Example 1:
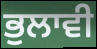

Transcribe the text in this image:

ਭੁਲਾਵੀ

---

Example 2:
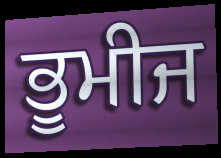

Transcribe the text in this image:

ਭੂਮੀਜ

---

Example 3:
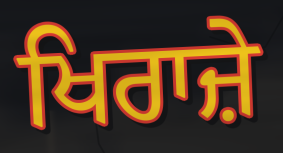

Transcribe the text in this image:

ਖਿਰਾਜ਼ੇ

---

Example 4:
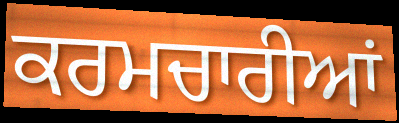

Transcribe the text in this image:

ਕਰਮਚਾਰੀਆਂ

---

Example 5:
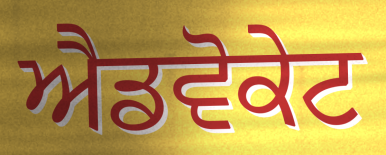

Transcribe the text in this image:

ਐਡਵੋਕੇਟ